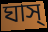
ঘাস্